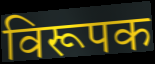
विरूपक